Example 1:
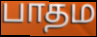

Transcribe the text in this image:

பாதம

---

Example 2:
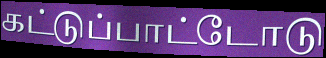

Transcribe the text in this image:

கட்டுப்பாட்டோடு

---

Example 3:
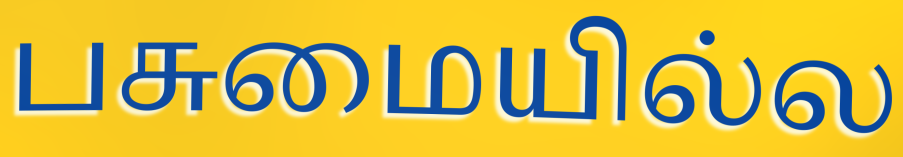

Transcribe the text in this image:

பசுமையில்ல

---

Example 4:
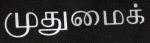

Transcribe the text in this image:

முதுமைக்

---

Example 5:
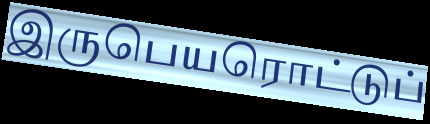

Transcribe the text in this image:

இருபெயரொட்டுப்